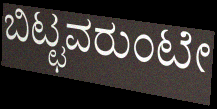
ಬಿಟ್ಟವರುಂಟೇ